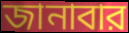
জানাবার